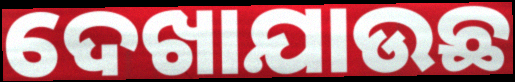
ଦେଖାଯାଉଛ